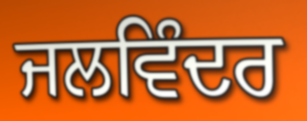
ਜਲਵਿੰਦਰ